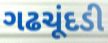
ગઢચૂંદડી